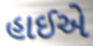
હાઈએ